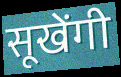
सूखेंगी